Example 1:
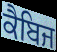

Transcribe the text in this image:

ਕੈਬਿਜ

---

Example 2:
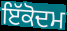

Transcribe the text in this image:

ਇੱਕੋਦਮ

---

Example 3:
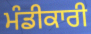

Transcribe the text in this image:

ਮੰਡੀਕਾਰੀ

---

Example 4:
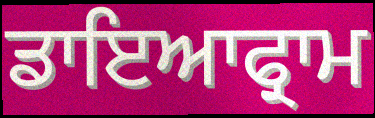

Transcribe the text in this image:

ਡਾਇਆਫ੍ਰਾਮ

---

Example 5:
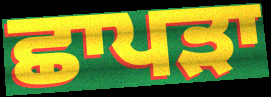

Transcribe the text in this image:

ਛਾਪੜਾ